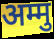
अम्मु